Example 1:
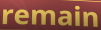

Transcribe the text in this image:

remain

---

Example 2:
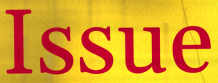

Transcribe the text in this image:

Issue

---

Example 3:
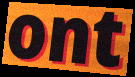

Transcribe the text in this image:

ont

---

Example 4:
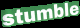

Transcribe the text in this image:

stumble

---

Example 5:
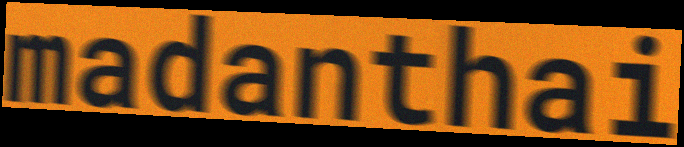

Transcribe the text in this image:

madanthai